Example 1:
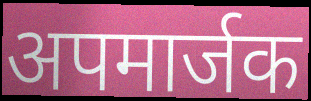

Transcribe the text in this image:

अपमार्जक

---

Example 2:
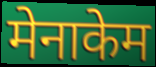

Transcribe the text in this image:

मेनाकेम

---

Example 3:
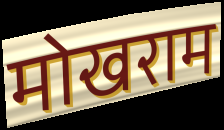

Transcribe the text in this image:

मोखराम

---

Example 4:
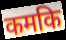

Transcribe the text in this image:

कमकि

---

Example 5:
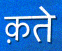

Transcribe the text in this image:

क़ते